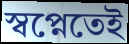
স্বপ্নেতেই